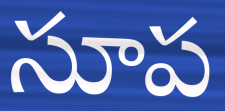
సూప